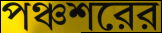
পঞ্চশরের